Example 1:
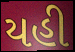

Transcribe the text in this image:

યહી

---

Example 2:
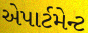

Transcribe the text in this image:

એપાર્ટમેન્ટ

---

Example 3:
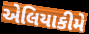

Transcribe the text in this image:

એલિયાકીમે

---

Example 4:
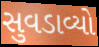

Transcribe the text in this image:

સુવડાવ્યો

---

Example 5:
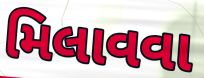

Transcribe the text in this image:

મિલાવવા